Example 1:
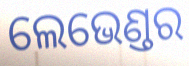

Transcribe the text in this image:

ଲେଭେଣ୍ଡର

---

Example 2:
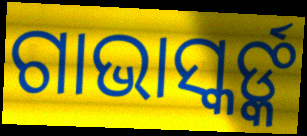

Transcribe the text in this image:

ଗାଭାସ୍କର୍ଙ୍କ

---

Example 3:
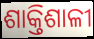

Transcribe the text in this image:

ଶାକ୍ତିଶାଳୀ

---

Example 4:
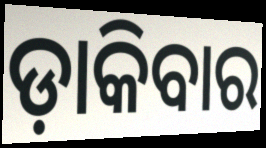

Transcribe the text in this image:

ଡ଼ାକିବାର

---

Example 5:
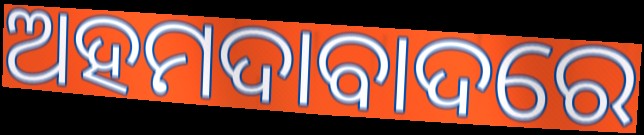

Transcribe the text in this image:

ଅହମଦାବାଦରେ